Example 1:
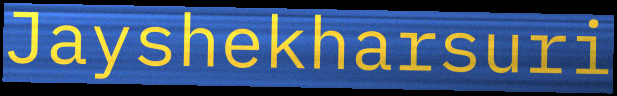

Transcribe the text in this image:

Jayshekharsuri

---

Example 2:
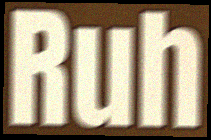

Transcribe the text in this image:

Ruh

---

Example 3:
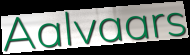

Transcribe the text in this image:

Aalvaars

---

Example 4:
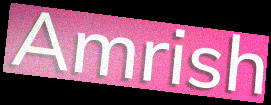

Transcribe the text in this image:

Amrish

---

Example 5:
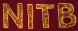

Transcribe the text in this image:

NITB